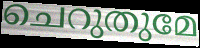
ചെറുതുമേ